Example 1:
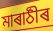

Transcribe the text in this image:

মাৰাঠীৰ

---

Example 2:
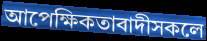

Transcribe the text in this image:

আপেক্ষিকতাবাদীসকলে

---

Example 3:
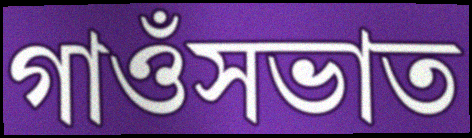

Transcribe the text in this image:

গাওঁসভাত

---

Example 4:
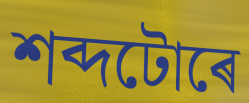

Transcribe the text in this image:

শব্দটোৰে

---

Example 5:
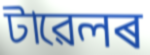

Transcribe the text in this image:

টাৱেলৰ